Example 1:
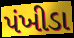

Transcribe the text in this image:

પંખીડા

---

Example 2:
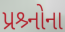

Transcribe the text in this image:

પ્રશ્ર્નોના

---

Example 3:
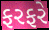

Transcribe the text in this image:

ફરફરે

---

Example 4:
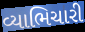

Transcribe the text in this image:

વ્યાભિચારી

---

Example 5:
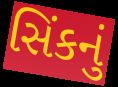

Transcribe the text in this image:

સિંકનું